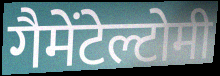
गैमेंटेल्टोमी